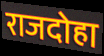
राजदोहा